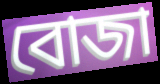
বোজা